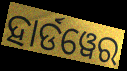
ହାର୍ଡୱେର